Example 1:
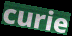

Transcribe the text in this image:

curie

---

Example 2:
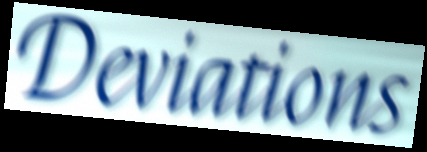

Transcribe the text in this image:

Deviations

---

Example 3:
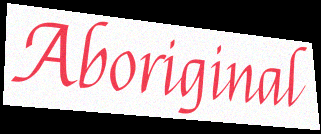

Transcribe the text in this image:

Aboriginal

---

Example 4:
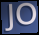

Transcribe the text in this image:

JO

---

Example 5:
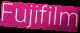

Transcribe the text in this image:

Fujifilm